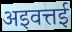
अइवत्तई